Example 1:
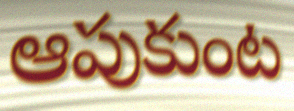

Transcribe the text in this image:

ఆపుకుంట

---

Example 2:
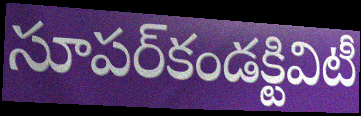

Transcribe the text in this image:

సూపర్‌కండక్టివిటీ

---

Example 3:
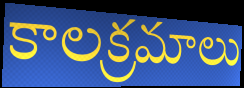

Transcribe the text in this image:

కాలక్రమాలు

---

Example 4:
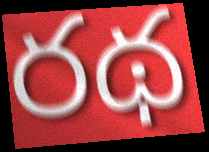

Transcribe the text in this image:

రథ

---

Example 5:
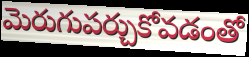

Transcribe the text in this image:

మెరుగుపర్చుకోవడంతో